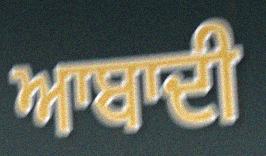
ਆਬਾਦੀ